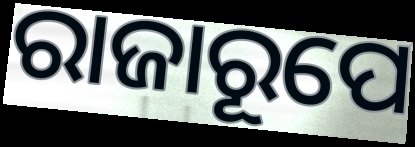
ରାଜାରୂପେ